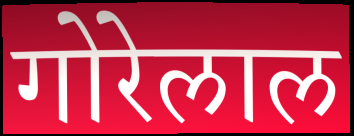
गोरेलाल